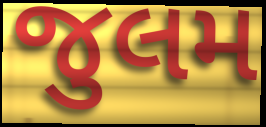
જુલમ